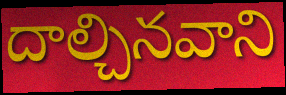
దాల్చినవాని